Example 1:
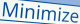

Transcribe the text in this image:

Minimize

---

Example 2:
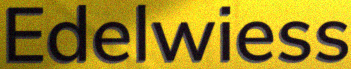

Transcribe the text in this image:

Edelwiess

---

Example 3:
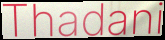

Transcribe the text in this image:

Thadani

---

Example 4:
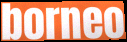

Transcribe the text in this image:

borneo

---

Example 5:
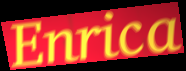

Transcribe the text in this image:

Enrica